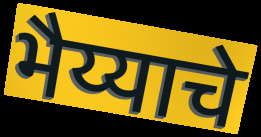
भैय्याचे